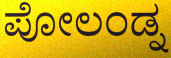
ಪೋಲಂಡ್ನ